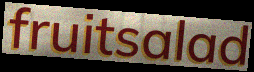
fruitsalad